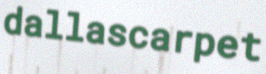
dallascarpet